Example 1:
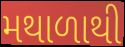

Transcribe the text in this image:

મથાળાથી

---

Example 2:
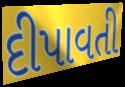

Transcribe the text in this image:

દીપાવતી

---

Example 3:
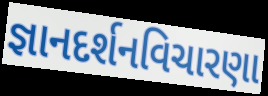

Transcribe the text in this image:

જ્ઞાનદર્શનવિચારણા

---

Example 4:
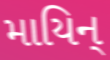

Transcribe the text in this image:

માયિન્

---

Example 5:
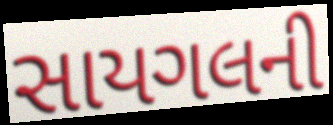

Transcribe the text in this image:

સાયગલની